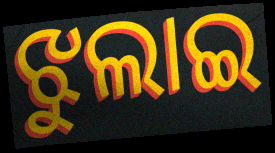
ଝୁଲାଇ